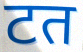
टत